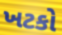
ખટકો